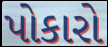
પોકારો